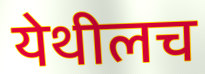
येथीलच